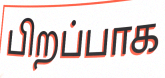
பிறப்பாக